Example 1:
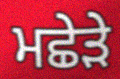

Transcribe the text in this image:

ਮਛੇੜੇ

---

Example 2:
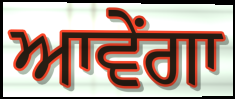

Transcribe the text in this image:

ਆਵੇਂਗਾ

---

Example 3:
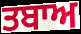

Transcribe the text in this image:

ਤਬਾਅ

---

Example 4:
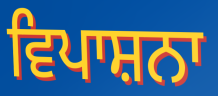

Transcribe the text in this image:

ਵਿਪਾਸ਼ਨਾ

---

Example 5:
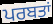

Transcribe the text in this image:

ਪਰਬਤਾਂ